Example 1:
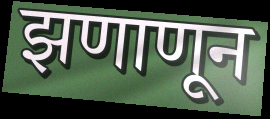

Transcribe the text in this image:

झणाणून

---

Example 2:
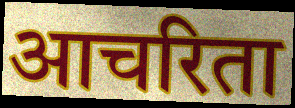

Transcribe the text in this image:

आचरिता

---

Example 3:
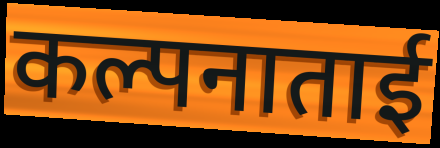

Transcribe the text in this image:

कल्पनाताई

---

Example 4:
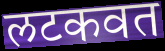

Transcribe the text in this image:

लटकवत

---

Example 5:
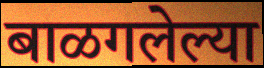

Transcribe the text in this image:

बाळगलेल्या